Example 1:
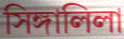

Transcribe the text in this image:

সিঙ্গালিলা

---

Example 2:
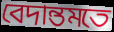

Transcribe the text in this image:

বেদান্তমতে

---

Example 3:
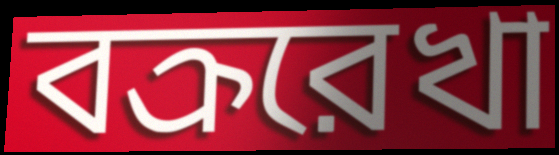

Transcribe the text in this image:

বক্ররেখা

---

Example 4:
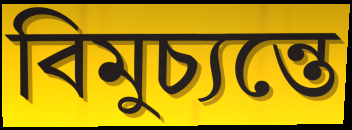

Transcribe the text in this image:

বিমুচ্যন্তে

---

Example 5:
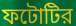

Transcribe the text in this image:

ফটোটির